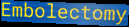
Embolectomy